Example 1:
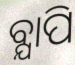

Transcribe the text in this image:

ବ୍ଯାପି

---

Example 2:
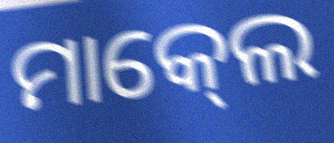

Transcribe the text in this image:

ମାକ୍‍ଲେ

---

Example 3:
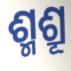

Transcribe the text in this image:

ଶ୍ମଶ୍ରୂ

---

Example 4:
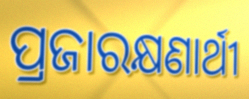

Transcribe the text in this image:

ପ୍ରଜାରକ୍ଷଣାର୍ଥୀ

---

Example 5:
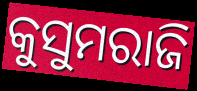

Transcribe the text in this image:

କୁସୁମରାଜି